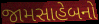
જામસાહેબનો